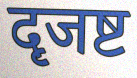
दृजष्ट